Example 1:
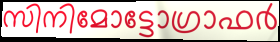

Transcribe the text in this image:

സിനിമോട്ടോഗ്രാഫർ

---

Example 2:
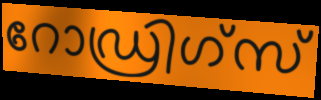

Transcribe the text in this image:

റോഡ്രിഗ്സ്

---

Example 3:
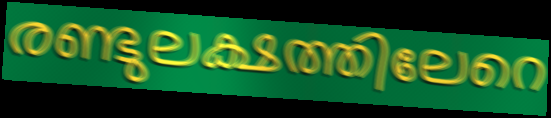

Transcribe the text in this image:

രണ്ടുലക്ഷത്തിലേറെ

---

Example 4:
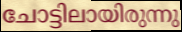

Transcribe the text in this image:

ചോട്ടിലായിരുന്നു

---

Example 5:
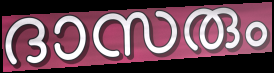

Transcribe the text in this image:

ദാസരും